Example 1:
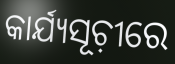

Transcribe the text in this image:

କାର୍ଯ୍ୟସୂଚ଼ୀରେ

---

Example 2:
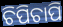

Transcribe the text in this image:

ଚିପିଚାପି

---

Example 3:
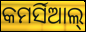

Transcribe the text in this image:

କମର୍ସିଆଲ୍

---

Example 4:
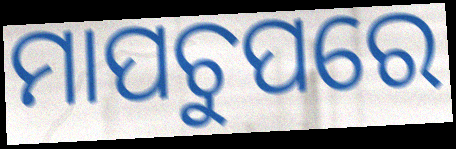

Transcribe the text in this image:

ମାପଚୁପରେ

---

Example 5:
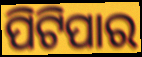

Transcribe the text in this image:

ପିଟିପାର